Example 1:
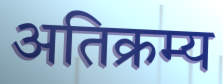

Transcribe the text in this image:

अतिक्रम्य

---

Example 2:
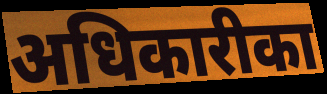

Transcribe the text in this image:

अधिकारीका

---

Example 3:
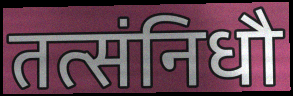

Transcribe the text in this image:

तत्संनिधौ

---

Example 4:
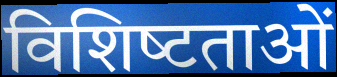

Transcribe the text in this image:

विशिष्‍टताओं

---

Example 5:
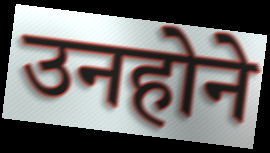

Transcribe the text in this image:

उनहोने